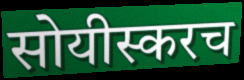
सोयीस्करच